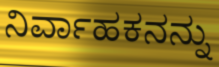
ನಿರ್ವಾಹಕನನ್ನು